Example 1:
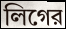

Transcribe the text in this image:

লিগের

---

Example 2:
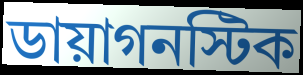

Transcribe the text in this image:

ডায়াগনস্টিক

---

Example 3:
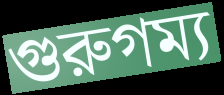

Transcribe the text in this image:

গুরুগম্য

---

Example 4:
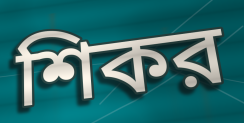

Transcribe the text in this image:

শিকর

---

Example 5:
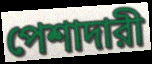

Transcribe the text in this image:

পেশাদারী